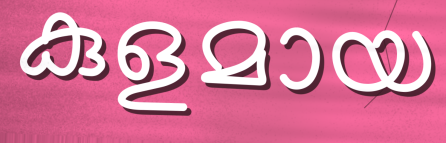
കുളമായ